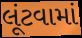
લૂંટવામાં